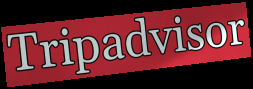
Tripadvisor